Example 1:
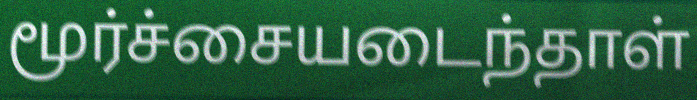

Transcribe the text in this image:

மூர்ச்சையடைந்தாள்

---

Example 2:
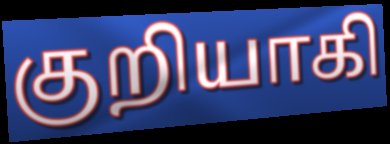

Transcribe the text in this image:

குறியாகி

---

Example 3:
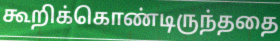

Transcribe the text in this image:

கூறிக்கொண்டிருந்ததை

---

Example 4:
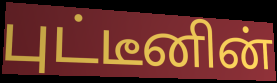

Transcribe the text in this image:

புட்டீனின்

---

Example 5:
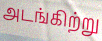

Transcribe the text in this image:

அடங்கிற்று